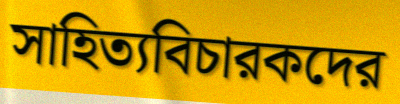
সাহিত্যবিচারকদের